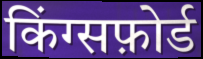
किंग्सफ़ोर्ड